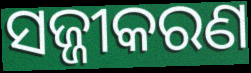
ସଜ୍ଜୀକରଣ